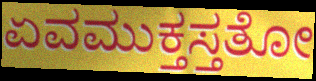
ಏವಮುಕ್ತಸ್ತತೋ